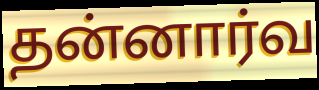
தன்னார்வ